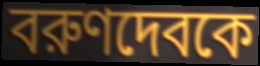
বরুণদেবকে